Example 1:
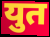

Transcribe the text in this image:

युत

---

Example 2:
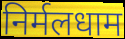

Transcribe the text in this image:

निर्मलधाम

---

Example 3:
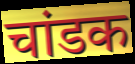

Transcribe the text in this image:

चांडक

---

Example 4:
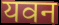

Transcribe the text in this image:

यवन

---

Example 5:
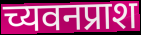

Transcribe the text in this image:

च्यवनप्राश